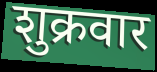
शुक्रवार